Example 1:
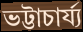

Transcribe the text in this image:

ভট্টাচার্য্য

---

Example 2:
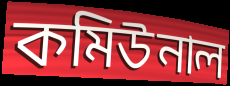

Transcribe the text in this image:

কমিউনাল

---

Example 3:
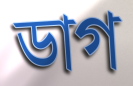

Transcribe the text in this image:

ডাগ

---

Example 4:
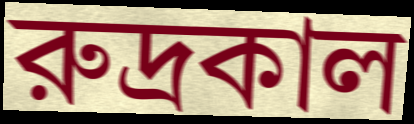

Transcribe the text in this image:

রুদ্রকাল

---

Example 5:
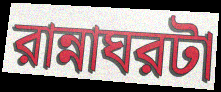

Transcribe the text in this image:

রান্নাঘরটা